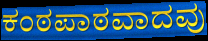
ಕಂಠಪಾಠವಾದವು